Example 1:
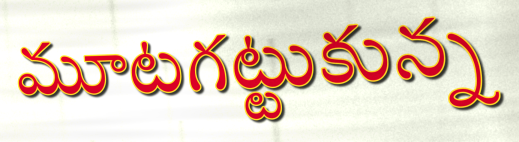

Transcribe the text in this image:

మూటగట్టుకున్న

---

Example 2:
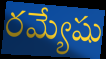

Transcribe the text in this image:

రమ్యేషు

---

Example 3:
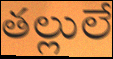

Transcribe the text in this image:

తల్లులే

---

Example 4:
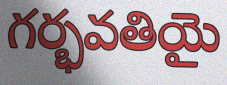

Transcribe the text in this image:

గర్భవతియై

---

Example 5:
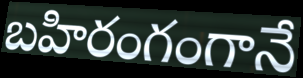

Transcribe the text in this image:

బహిరంగంగానే